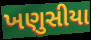
ખણુસીયા